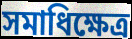
সমাধিক্ষেত্ৰ